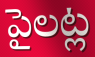
పైలట్ల